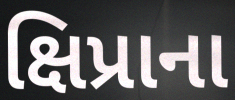
ક્ષિપ્રાના